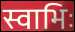
स्वाभिः